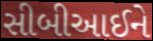
સીબીઆઈને